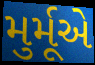
મુર્મૂએ